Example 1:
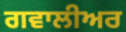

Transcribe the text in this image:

ਗਵਾਲੀਅਰ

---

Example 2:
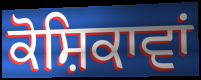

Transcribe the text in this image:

ਕੋਸ਼ਿਕਾਵਾਂ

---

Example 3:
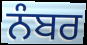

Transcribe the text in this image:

ਨੰਬਰ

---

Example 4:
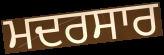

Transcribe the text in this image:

ਮਦਰਸਾਰ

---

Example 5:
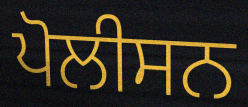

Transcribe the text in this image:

ਪੋਲੀਸਨ